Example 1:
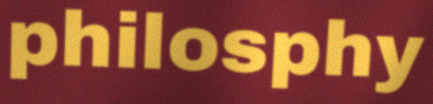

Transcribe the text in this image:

philosphy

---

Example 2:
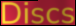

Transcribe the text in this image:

Discs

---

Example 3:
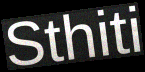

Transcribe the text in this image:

Sthiti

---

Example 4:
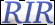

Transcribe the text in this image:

RIR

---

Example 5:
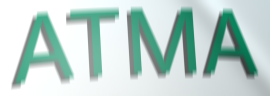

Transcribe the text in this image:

ATMA